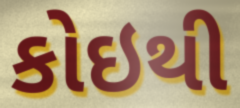
કોઇથી